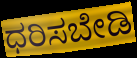
ಧರಿಸಬೇಡಿ